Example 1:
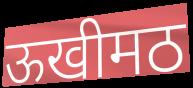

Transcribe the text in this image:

ऊखीमठ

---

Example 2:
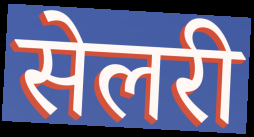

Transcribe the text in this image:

सेलरी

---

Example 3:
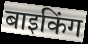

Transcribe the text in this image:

बाइकिंग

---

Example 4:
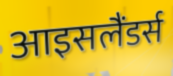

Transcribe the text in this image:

आइसलैंडर्स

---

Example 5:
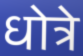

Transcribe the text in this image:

धोत्रे